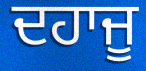
ਦਹਾਜੂ